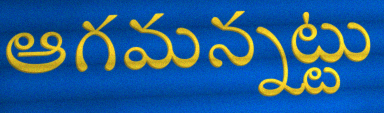
ఆగమన్నట్టు